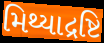
મિથ્યાદ્રષ્ટિ